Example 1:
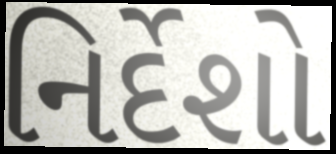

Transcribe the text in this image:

નિર્દેશો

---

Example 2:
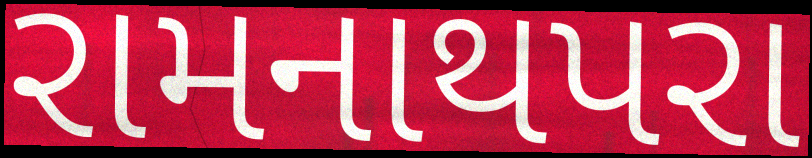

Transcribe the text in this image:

રામનાથપરા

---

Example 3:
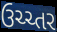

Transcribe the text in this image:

ઉચ્ચ્તર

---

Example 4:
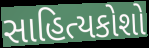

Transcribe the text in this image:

સાહિત્યકોશો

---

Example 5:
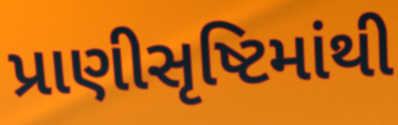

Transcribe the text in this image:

પ્રાણીસૃષ્ટિમાંથી